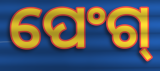
ପେଂଗ୍